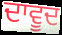
ਦਾਵੂਦ